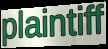
plaintiff